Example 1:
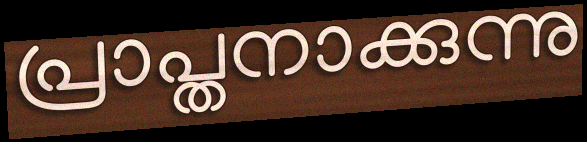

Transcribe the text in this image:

പ്രാപ്തനാക്കുന്നു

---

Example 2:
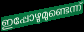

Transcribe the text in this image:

ഇപ്പോഴുമുണ്ടെന്ന്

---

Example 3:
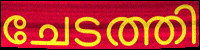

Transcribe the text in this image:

ചേടത്തി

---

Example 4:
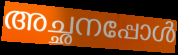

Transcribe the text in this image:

അച്ഛനപ്പോൾ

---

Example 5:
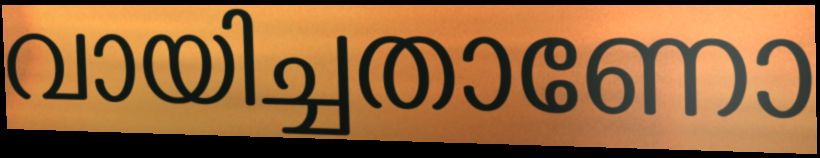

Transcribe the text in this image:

വായിച്ചതാണോ